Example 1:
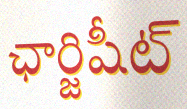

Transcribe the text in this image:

ఛార్జిషీట్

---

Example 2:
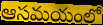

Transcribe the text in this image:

ఆసమయంలో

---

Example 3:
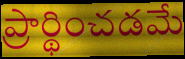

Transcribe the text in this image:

ప్రార్థించడమే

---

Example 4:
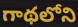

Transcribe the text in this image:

గాథలోని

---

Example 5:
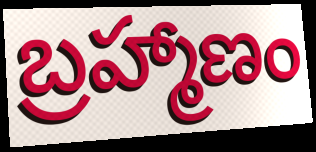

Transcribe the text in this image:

బ్రహ్మాణం